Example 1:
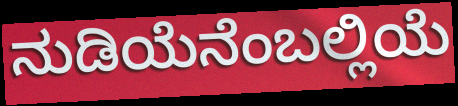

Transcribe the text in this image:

ನುಡಿಯೆನೆಂಬಲ್ಲಿಯೆ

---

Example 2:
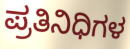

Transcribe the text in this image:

ಪ್ರತಿನಿಧಿಗಳ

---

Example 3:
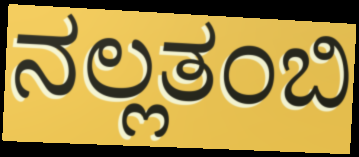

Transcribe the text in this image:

ನಲ್ಲತಂಬಿ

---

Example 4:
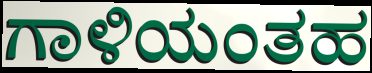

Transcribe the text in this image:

ಗಾಳಿಯಂತಹ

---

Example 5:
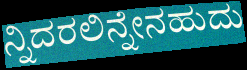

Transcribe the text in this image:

ನ್ನಿದರಲಿನ್ನೇನಹುದು